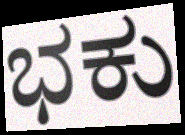
ಭಕು